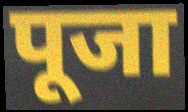
पूजा